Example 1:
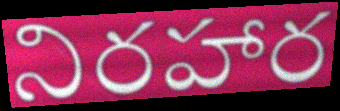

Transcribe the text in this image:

నిరహార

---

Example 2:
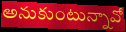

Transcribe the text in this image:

అనుకుంటున్నావో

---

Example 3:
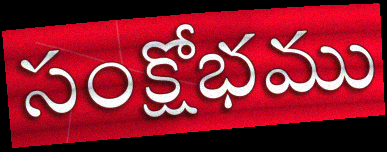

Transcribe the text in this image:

సంక్షోభము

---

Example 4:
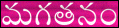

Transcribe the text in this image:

మగతనం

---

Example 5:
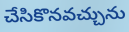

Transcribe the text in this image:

చేసికొనవచ్చును